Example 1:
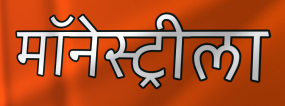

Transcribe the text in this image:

मॉनेस्ट्रीला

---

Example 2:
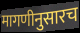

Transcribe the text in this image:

मागणीनुसारच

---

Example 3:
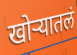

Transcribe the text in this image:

खोऱ्यातलं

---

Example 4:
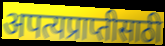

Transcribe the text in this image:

अपत्यप्राप्तीसाठी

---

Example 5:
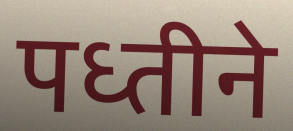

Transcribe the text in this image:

पध्तीने